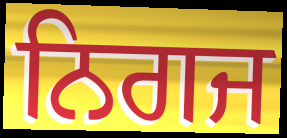
ਨਿਗਜ